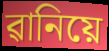
ৱানিয়ে